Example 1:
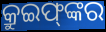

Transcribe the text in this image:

କ୍ରୁଇଫ୍‌ଙ୍କର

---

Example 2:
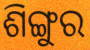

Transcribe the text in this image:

ଶିଙ୍ଗୁର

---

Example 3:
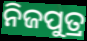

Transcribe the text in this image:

ନିଜପୁତ୍ର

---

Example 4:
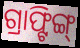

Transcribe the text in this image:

ଗ୍ରାଫ୍ଟିଙ୍ଗ୍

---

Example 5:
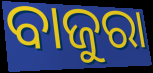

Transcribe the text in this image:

ବାଜୁରା